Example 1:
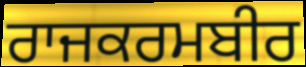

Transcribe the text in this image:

ਰਾਜਕਰਮਬੀਰ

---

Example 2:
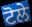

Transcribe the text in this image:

ਟੋਲੇ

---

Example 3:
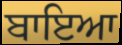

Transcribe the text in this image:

ਬਾਇਆ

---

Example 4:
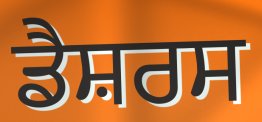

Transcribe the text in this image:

ਡੈਸ਼ਰਸ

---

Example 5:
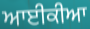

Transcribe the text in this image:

ਆਈਕੀਆ